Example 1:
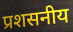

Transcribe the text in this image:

प्रशसनीय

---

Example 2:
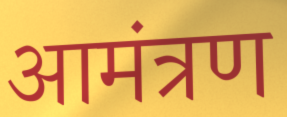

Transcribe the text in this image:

आमंत्रण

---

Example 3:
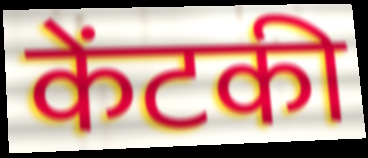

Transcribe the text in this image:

केंटकी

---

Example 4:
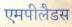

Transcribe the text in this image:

एमपीलैडस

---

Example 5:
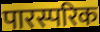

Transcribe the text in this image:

पारस्परिक